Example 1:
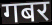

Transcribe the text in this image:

गबर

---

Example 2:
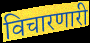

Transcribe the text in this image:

विचारणारी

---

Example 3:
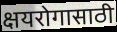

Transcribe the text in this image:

क्षयरोगासाठी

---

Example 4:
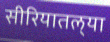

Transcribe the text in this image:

सीरियातल्या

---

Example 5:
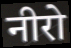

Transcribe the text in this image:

नीरो